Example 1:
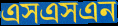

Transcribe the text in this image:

এসএসএন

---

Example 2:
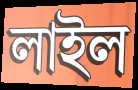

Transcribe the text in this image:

লাইল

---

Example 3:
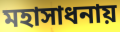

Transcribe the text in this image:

মহাসাধনায়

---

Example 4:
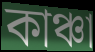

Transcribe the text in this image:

কাঞ্চা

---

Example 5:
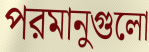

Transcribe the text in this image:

পরমানুগুলো